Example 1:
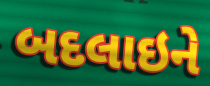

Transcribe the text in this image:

બદલાઇને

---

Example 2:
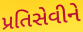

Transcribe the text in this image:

પ્રતિસેવીને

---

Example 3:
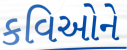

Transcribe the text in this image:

કવિઓને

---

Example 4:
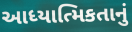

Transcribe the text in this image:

આધ્યાત્મિકતાનું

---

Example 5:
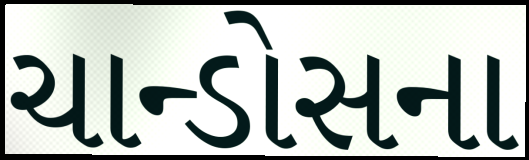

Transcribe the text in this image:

ચાન્ડોસના